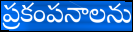
ప్రకంపనాలను